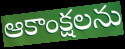
ఆకాంక్షలను